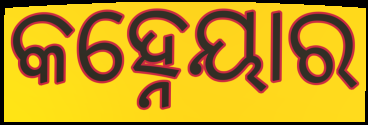
କହ୍ନେୟାର